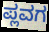
ಪ್ಲವಗ